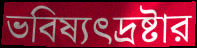
ভবিষ্যৎদ্রষ্টার